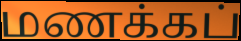
மணக்கப்